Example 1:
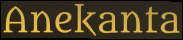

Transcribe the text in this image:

Anekanta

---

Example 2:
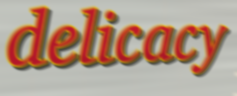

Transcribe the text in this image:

delicacy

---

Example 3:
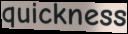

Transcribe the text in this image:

quickness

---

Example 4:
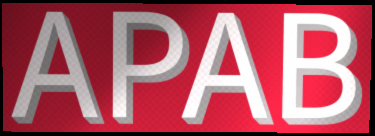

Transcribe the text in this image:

APAB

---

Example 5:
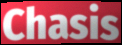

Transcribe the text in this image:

Chasis